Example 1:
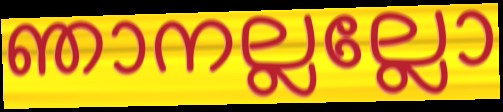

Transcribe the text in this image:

ഞാനല്ലല്ലോ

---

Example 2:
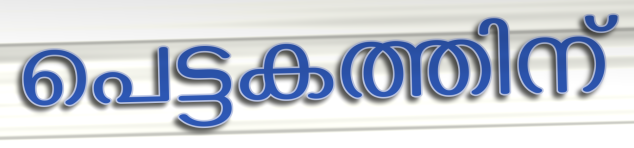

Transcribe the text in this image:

പെട്ടകത്തിന്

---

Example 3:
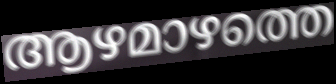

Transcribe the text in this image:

ആഴമാഴത്തെ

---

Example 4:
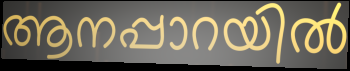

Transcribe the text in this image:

ആനപ്പാറയിൽ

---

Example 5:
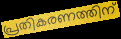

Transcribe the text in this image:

പ്രതികരണത്തിന്